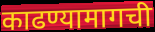
काढण्यामागची